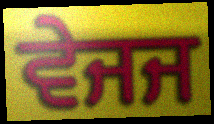
ਵੇਜਜ